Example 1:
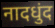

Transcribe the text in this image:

नादधुंद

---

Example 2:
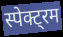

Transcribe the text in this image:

स्पेक्ट्रम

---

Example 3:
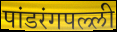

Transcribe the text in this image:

पांडरंगपल्ली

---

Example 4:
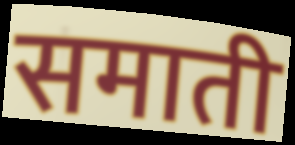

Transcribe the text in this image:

समाती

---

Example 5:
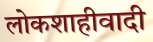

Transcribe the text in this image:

लोकशाहीवादी